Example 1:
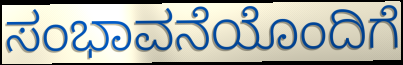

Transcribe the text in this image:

ಸಂಭಾವನೆಯೊಂದಿಗೆ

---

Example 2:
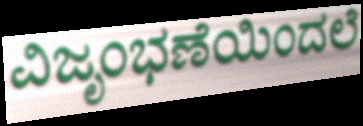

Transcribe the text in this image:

ವಿಜೃಂಭಣೆಯಿಂದಲೆ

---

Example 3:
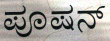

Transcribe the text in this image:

ಪೂಷನ್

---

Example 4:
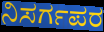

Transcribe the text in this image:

ನಿಸರ್ಗಪರ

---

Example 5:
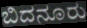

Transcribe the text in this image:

ಬಿದನೂರು